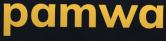
pamwa